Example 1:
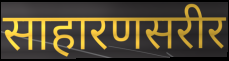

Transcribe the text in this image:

साहारणसरीर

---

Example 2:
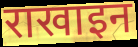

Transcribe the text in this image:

राखाइन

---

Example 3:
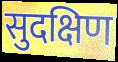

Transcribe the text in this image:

सुदक्षिण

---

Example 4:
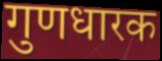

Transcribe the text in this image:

गुणधारक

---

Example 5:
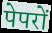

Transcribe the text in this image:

पेपरों